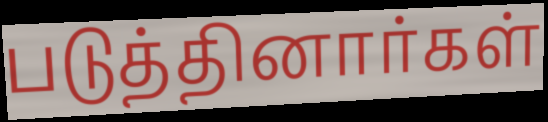
படுத்தினார்கள்